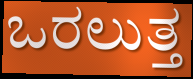
ಒರಲುತ್ತ